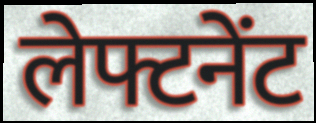
लेफ्टनेंट